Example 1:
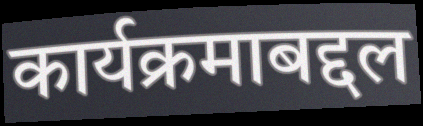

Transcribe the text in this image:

कार्यक्रमाबद्दल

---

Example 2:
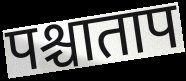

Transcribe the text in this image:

पश्चाताप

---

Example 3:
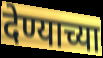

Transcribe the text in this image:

देण्याच्या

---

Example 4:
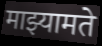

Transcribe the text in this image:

माझ्यामते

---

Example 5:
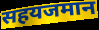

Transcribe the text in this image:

सहयजमान